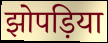
झोपड़िया